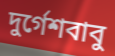
দুর্গেশবাবু